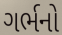
ગર્ભનો